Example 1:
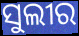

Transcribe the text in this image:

ସୁଲୀର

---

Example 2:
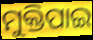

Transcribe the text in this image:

ମୁକ୍ତିପାଇ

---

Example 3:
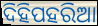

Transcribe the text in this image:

ଦିହିପହରିଆ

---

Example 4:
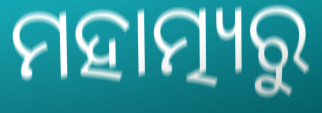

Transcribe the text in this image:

ମହାତ୍ମ୍ୟରୁ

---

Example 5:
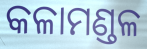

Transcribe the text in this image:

କଳାମଣ୍ଡଳ